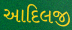
આદિલજી